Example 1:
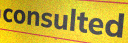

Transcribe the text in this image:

consulted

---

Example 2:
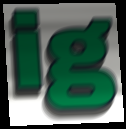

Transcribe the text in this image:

ig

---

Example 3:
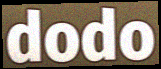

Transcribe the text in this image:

dodo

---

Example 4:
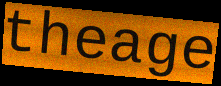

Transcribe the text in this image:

theage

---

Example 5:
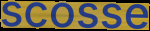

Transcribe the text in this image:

scosse